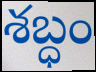
శబ్ధం